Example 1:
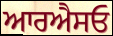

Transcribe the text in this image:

ਆਰਐਸਓ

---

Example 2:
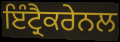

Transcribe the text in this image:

ਇੰਟ੍ਰੈਕਰੇਨਲ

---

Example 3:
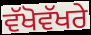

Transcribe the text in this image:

ਵੱਖੋਵੱਖਰੇ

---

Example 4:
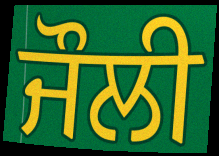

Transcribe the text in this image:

ਜੌਲੀ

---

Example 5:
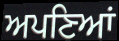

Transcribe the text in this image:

ਅਪਣਿਆਂ